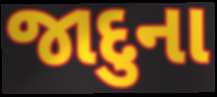
જાદુના